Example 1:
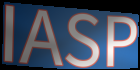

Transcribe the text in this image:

IASP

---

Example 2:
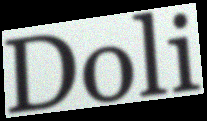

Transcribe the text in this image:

Doli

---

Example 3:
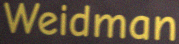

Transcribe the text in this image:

Weidman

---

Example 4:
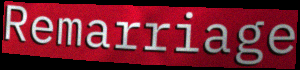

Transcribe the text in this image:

Remarriage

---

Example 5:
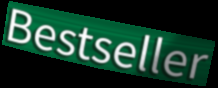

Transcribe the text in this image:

Bestseller